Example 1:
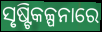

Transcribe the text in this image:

ସୃଷ୍ଟିକଳ୍ପନାରେ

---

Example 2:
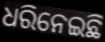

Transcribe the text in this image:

ଧରିନେଇଛି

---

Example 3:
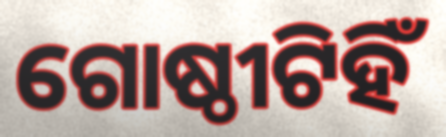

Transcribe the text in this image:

ଗୋଷ୍ଠୀଟିହିଁ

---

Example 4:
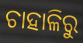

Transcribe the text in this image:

ଚାହାଳିରୁ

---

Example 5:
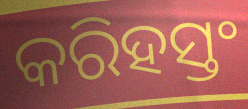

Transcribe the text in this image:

କରିହସ୍ତଂ